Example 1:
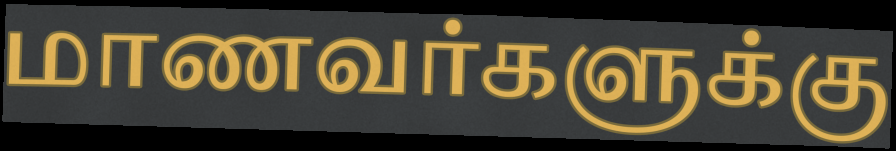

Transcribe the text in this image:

மாணவர்களுக்கு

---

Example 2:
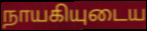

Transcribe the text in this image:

நாயகியுடைய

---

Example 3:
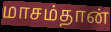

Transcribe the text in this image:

மாசம்தான்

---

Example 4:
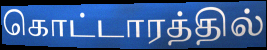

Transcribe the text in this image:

கொட்டாரத்தில்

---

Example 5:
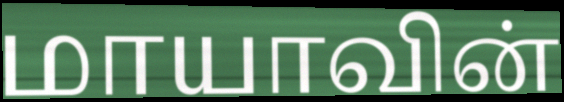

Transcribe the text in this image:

மாயாவின்